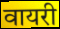
वायरी